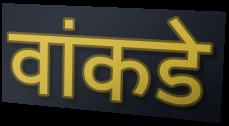
वांकडे